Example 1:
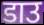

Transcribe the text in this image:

डाउ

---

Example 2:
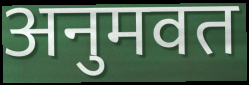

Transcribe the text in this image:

अनुमवत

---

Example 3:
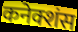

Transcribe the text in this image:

कनेक्शंस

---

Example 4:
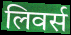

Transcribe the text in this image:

लिवर्स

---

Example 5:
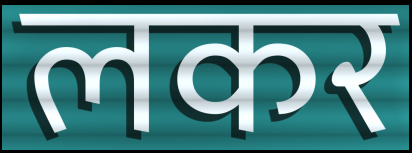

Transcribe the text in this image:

लकर